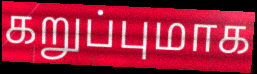
கறுப்புமாக